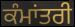
ਕੰਮਾਂਤਰੀ